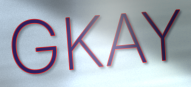
GKAY